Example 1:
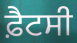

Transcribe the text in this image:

ਫ਼ੈਟਸੀ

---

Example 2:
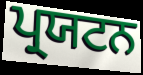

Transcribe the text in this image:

ਪ੍ਰਯਟਨ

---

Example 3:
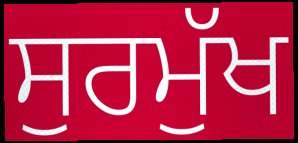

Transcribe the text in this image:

ਸੁਰਮੁੱਖ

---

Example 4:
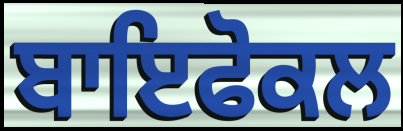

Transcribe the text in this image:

ਬਾਇਫੋਕਲ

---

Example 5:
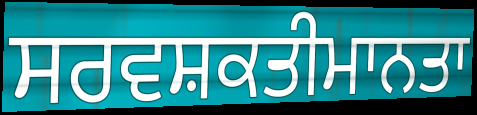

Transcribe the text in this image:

ਸਰਵਸ਼ਕਤੀਮਾਨਤਾ